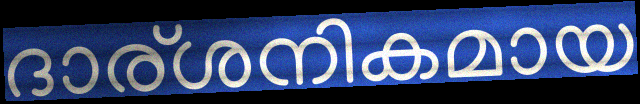
ദാര്ശനികമായ